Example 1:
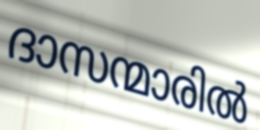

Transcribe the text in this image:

ദാസന്മാരിൽ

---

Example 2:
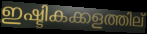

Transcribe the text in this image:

ഇഷ്ടികക്കളത്തില്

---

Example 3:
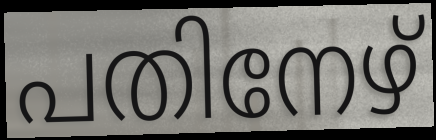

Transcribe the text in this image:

പതിനേഴ്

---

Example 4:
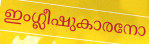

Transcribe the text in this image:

ഇംഗ്ലീഷുകാരനോ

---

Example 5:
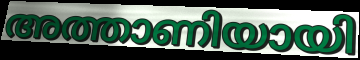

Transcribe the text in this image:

അത്താണിയായി